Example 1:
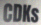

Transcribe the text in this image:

CDKs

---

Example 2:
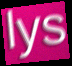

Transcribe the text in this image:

lys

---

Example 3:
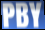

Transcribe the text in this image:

PBY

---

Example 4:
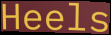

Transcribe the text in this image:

Heels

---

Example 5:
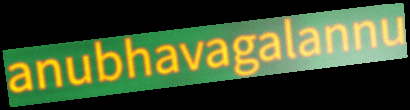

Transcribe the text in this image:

anubhavagalannu